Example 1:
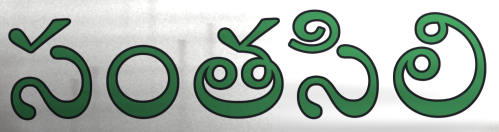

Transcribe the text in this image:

సంతసిలి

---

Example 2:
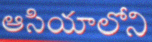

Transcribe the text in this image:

ఆసియాలోని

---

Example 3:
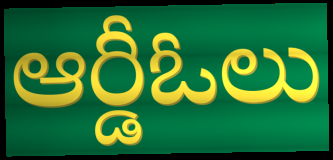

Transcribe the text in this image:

ఆర్డీఓలు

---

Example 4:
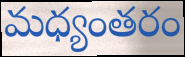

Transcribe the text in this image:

మధ్యంతరం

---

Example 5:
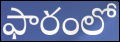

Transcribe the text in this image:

ఫారంలో